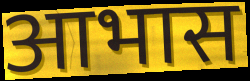
आभास